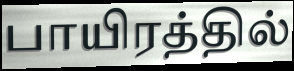
பாயிரத்தில்